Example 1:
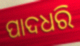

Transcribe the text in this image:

ପାଦଧରି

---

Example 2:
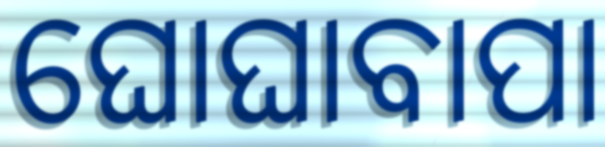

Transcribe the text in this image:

ଘୋଘାବାପା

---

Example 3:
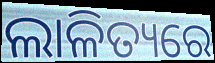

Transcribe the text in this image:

ଲାଳିତ୍ୟରେ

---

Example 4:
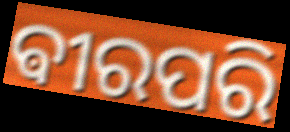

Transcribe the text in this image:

ଵୀରପରି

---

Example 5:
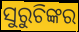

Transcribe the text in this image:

ସୁରୁଚିଙ୍କର